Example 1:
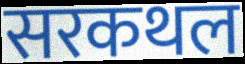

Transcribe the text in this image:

सरकथल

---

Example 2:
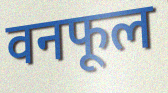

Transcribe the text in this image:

वनफूल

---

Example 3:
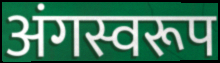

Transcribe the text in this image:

अंगस्वरूप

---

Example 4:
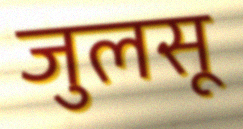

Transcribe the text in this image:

जुलसू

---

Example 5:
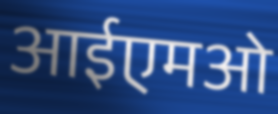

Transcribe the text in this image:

आईएमओ